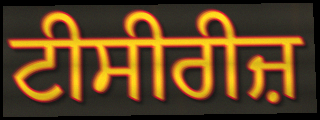
ਟੀਸੀਰੀਜ਼